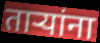
तार्‍यांना